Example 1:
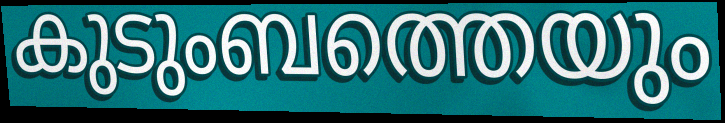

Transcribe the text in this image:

കുടുംബത്തെയും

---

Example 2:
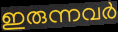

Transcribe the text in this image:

ഇരുന്നവർ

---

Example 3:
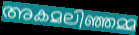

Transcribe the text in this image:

അകമലിഞ്ഞമ്മ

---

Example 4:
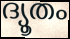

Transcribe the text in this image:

ദ്യൂതം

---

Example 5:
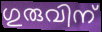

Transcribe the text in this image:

ഗുരുവിന്